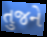
તુજને